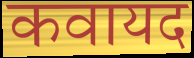
कवायद